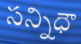
సన్నిధౌ